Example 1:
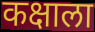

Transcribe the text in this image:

कक्षाला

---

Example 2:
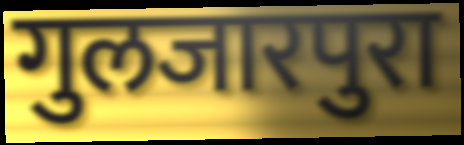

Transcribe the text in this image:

गुलजारपुरा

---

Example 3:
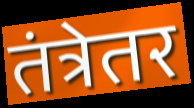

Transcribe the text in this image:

तंत्रेतर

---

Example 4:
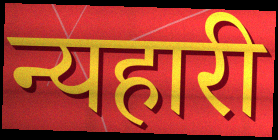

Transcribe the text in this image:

न्यहारी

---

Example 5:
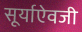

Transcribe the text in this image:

सूर्याऐवजी